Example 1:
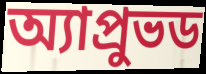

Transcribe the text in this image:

অ্যাপ্রুভড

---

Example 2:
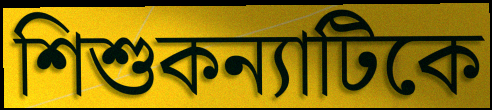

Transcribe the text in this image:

শিশুকন্যাটিকে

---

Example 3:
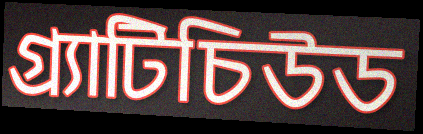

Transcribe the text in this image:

গ্র্যাটিচিউড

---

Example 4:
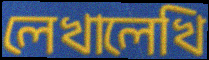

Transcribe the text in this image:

লেখালেখি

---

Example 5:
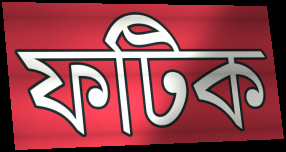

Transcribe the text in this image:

ফটিক